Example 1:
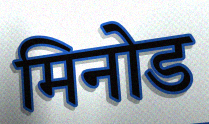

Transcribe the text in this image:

मिनोड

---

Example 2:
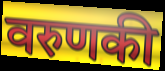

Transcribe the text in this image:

वरुणकी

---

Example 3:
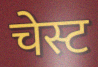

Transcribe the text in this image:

चेस्ट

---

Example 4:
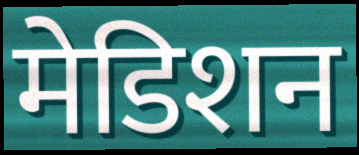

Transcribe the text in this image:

मेडिशन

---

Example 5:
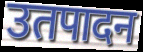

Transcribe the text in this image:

उतपादन